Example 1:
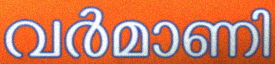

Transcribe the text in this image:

വർമാണി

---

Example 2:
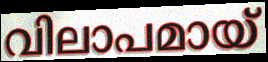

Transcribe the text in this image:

വിലാപമായ്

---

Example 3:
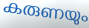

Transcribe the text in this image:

കരുണയും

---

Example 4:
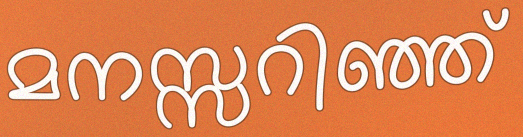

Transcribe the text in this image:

മനസ്സറിഞ്ഞ്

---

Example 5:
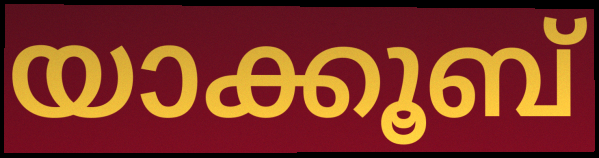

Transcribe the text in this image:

യാക്കൂബ്